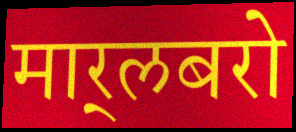
मार्लबरो